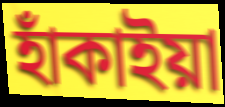
হাঁকাইয়া